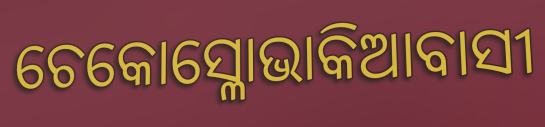
ଚେକୋସ୍ଳୋଭାକିଆବାସୀ